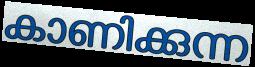
കാണിക്കുന്ന